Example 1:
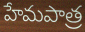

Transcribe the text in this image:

హేమపాత్ర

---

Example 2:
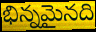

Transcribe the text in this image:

భిన్నమైనది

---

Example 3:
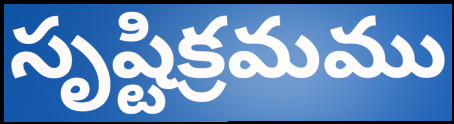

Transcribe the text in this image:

సృష్టిక్రమము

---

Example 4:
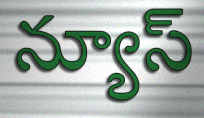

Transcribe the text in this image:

న్యూస్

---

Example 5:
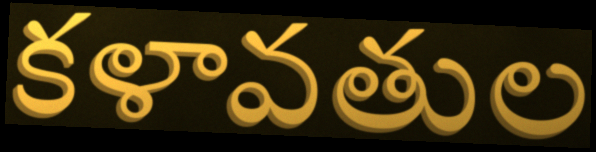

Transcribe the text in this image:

కళావతుల